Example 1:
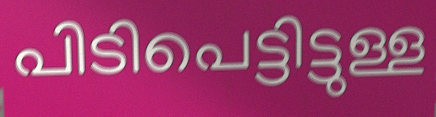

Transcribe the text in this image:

പിടിപെട്ടിട്ടുള്ള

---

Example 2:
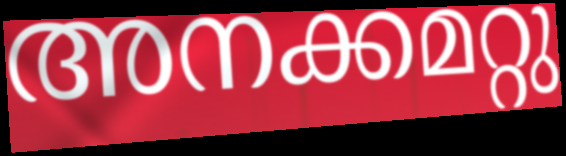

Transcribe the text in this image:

അനക്കമറ്റു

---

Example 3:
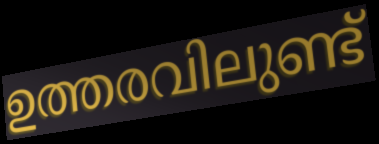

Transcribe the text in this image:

ഉത്തരവിലുണ്ട്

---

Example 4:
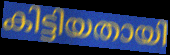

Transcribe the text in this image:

കിട്ടിയതായി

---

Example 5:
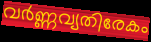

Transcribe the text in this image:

വർണ്ണവ്യതിരേകം